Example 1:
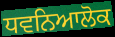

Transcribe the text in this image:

ਧਵਨਿਆਲੋਕ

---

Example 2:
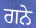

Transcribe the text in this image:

ਗਨੇ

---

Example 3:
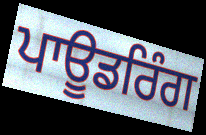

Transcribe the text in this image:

ਪਾਊਡਰਿੰਗ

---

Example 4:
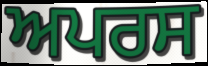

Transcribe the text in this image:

ਅਪਰਸ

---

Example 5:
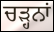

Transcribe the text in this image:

ਚੜ੍ਹਨਾਂ